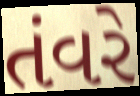
તંવરે